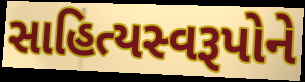
સાહિત્યસ્વરૂપોને